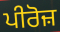
ਪੀਰੋਜ਼